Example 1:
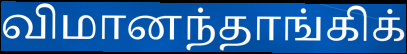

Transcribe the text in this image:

விமானந்தாங்கிக்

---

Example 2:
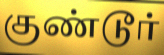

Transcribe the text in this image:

குண்டூர்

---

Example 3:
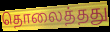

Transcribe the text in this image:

தொலைத்தது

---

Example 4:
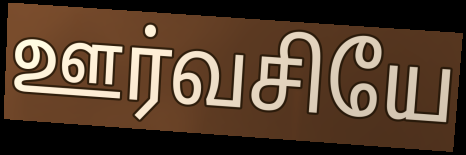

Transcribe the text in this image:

ஊர்வசியே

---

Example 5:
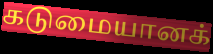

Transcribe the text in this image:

கடுமையானக்